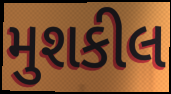
મુશકીલ